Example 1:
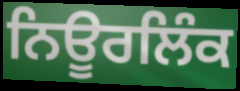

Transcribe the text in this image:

ਨਿਊਰਲਿੰਕ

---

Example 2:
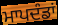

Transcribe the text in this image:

ਮਾਪਦੰਡਾਂ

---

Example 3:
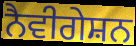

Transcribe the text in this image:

ਨੈਵੀਗੇਸ਼ਨ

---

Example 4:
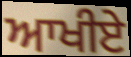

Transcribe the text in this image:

ਆਖੀਏ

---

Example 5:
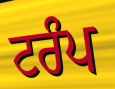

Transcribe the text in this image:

ਟਰੰਪ